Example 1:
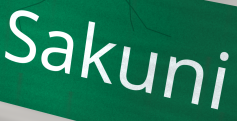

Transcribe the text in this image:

Sakuni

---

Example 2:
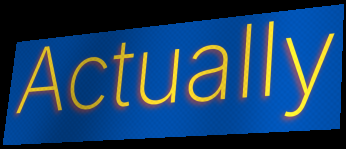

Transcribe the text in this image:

Actually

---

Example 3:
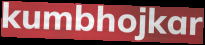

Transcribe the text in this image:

kumbhojkar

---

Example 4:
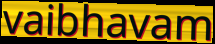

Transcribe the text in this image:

vaibhavam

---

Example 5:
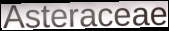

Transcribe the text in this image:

Asteraceae